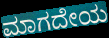
ಮಾಗದೇಯ